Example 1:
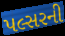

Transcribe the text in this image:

પલ્સરની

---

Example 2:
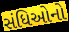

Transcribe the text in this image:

સંધિઓનો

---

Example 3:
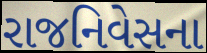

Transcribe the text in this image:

રાજનિવેસના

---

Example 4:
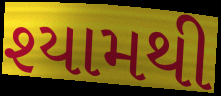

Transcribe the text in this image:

શ્યામથી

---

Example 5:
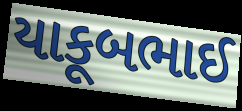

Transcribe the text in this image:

યાકૂબભાઈ